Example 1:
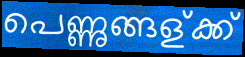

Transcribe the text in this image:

പെണ്ണുങ്ങള്ക്ക്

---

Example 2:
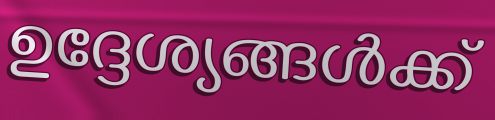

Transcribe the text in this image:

ഉദ്ദേശ്യങ്ങൾക്ക്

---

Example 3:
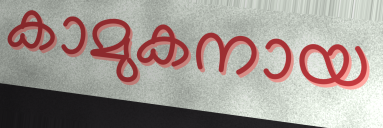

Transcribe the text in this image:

കാമുകനായ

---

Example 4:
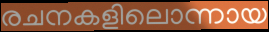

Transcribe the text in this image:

രചനകളിലൊന്നായ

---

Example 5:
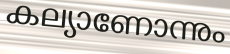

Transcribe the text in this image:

കല്യാണോന്നും